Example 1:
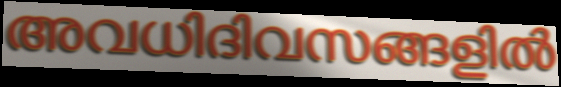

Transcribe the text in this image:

അവധിദിവസങ്ങളിൽ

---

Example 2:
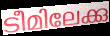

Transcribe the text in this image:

ടീമിലേക്കു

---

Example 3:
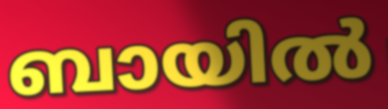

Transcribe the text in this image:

ബായിൽ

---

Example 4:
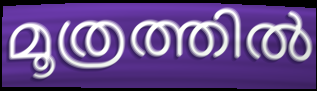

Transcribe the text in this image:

മൂത്രത്തിൽ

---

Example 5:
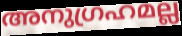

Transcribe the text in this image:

അനുഗ്രഹമല്ല